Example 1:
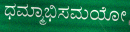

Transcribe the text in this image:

ಧಮ್ಮಾಭಿಸಮಯೋ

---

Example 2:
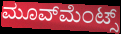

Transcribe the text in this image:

ಮೂವ್‍ಮೆಂಟ್ಸ್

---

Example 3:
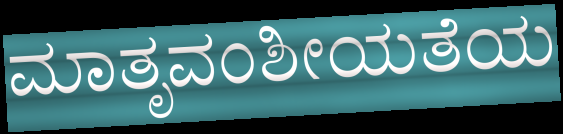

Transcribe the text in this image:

ಮಾತೃವಂಶೀಯತೆಯ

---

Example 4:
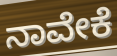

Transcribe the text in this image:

ನಾವೇಕೆ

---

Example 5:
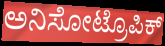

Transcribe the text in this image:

ಅನಿಸೋಟ್ರೊಪಿಕ್